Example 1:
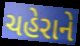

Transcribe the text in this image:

ચહેરાને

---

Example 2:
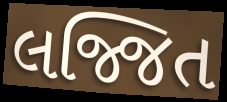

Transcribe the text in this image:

લજ્જિત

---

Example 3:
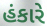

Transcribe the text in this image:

હંકારે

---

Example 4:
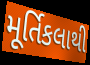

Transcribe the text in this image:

મૂર્તિકલાથી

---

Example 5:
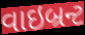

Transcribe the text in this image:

વાઇબ્રન્ટ